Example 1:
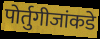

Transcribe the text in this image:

पोर्तुगीजांकडे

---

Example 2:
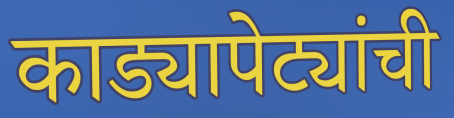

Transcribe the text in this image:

काड्यापेट्यांची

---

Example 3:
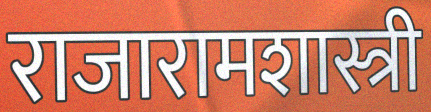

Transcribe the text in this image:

राजारामशास्त्री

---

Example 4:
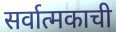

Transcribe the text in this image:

सर्वात्मकाची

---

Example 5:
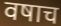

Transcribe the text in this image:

वषाच